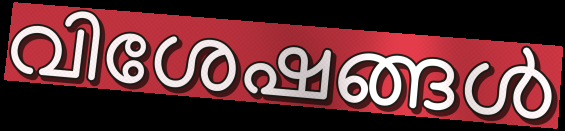
വിശേഷങ്ങൾ